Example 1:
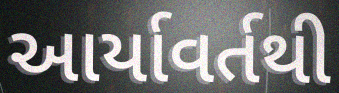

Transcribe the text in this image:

આર્યાવર્તથી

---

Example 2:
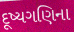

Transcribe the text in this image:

દૂષ્યગણિના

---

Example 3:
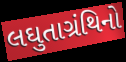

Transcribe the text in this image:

લઘુતાગ્રંથિનો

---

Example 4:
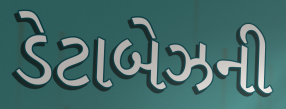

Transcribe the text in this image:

ડેટાબેઝની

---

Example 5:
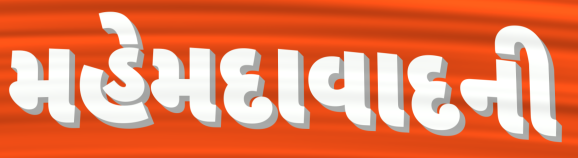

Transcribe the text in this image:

મહેમદાવાદની